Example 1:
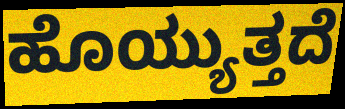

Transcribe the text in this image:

ಹೊಯ್ಯುತ್ತದೆ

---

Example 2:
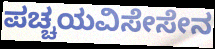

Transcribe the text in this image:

ಪಚ್ಚಯವಿಸೇಸೇನ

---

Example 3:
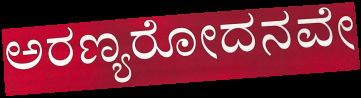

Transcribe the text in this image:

ಅರಣ್ಯರೋದನವೇ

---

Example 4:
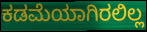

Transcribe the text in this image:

ಕಡಮೆಯಾಗಿರಲಿಲ್ಲ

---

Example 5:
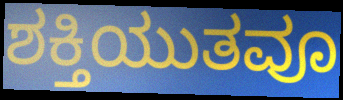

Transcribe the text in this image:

ಶಕ್ತಿಯುತವೂ